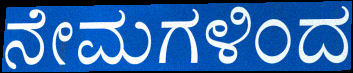
ನೇಮಗಳಿಂದ